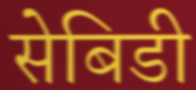
सेबिडी